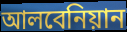
আলবেনিয়ান